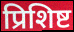
प्रिशिष्ट